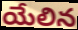
యేలిన